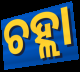
ଚହ୍ଲା